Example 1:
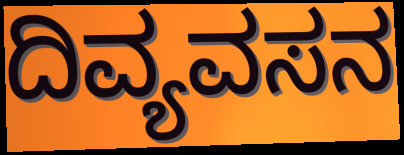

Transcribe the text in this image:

ದಿವ್ಯವಸನ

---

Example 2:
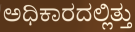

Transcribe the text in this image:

ಅಧಿಕಾರದಲ್ಲಿತ್ತು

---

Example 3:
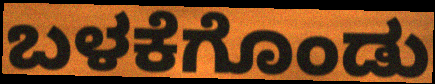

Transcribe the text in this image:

ಬಳಕೆಗೊಂಡು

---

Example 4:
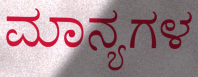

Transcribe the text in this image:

ಮಾನ್ಯಗಳ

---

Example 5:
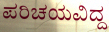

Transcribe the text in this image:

ಪರಿಚಯವಿದ್ದ